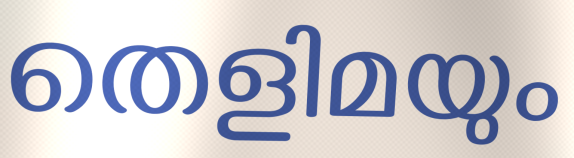
തെളിമയും